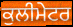
ਕੁਲੀਮੇਟਰ